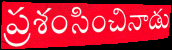
ప్రశంసించినాడు